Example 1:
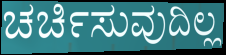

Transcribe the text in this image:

ಚರ್ಚಿಸುವುದಿಲ್ಲ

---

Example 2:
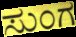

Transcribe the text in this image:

ಸುಂಗ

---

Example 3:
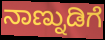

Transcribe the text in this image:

ನಾಣ್ನುಡಿಗೆ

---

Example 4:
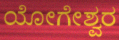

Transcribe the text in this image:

ಯೋಗೇಶ್ವರ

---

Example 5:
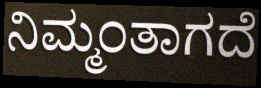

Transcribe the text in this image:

ನಿಮ್ಮಂತಾಗದೆ